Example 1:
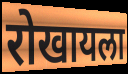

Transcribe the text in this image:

रोखायला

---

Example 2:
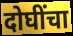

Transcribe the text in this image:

दोघींचा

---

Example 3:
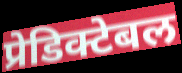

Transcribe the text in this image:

प्रेडिक्टेबल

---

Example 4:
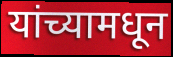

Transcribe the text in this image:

यांच्यामधून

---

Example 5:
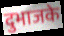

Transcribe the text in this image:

दुभाजके